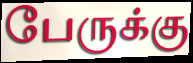
பேருக்கு